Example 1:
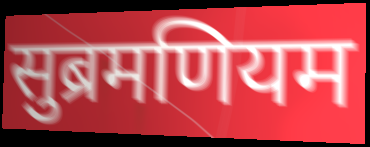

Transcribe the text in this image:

सुब्रमणियम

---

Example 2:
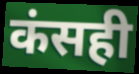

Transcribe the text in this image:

कंसही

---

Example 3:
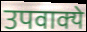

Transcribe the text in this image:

उपवाक्ये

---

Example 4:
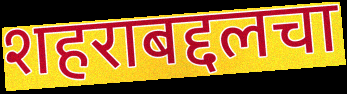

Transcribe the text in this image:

शहराबद्दलचा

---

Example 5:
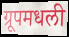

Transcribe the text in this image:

ग्रूपमधली